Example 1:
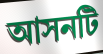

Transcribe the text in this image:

আসনটি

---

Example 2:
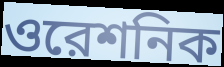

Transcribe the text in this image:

ওরেশনিক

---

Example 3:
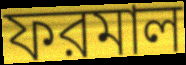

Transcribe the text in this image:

ফরমাল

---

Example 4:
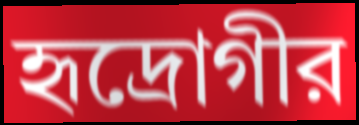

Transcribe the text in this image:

হৃদ্রোগীর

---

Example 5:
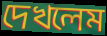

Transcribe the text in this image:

দেখলেম